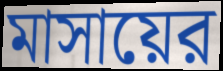
মাসায়ের